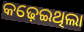
କଢ଼େଇଥିଲା